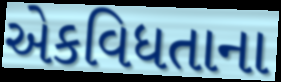
એકવિધતાના